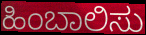
ಹಿಂಬಾಲಿಸು